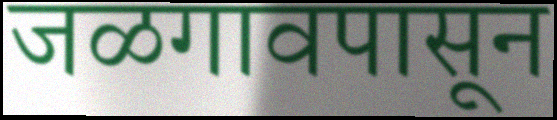
जळगावपासून